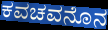
ಕವಚವನೊನ